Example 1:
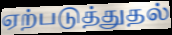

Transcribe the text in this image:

ஏற்படுத்துதல்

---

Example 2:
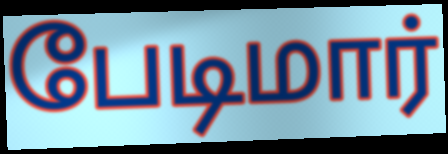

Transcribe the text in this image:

பேடிமார்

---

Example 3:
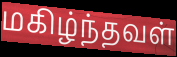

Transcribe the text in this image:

மகிழ்ந்தவள்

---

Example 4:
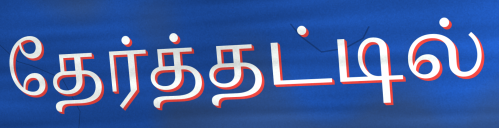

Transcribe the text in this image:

தேர்த்தட்டில்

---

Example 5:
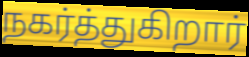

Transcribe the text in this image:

நகர்த்துகிறார்